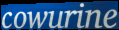
cowurine